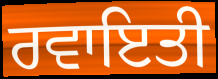
ਰਵਾਇਤੀ